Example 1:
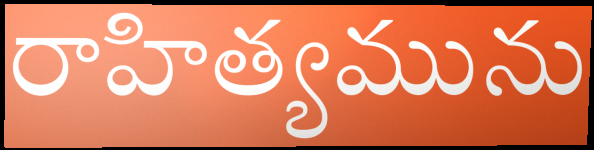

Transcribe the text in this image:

రాహిత్యమును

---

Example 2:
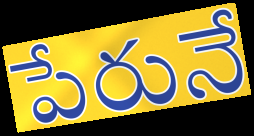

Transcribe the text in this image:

పేరునే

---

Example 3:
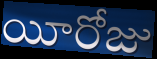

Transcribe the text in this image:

యీరోజు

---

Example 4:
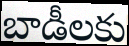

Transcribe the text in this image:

బాడీలకు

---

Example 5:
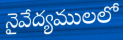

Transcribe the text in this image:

నైవేద్యములలో